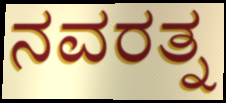
ನವರತ್ನ